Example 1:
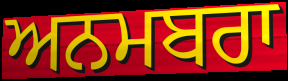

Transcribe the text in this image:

ਅਨਮਬਰਾ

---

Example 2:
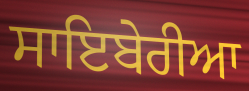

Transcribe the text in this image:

ਸਾਇਬੇਰੀਆ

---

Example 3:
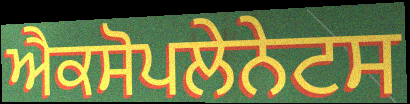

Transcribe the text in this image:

ਐਕਸੋਪਲੇਨੇਟਸ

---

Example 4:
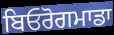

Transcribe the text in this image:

ਬਿਓਰੋਗਮਾਡਾ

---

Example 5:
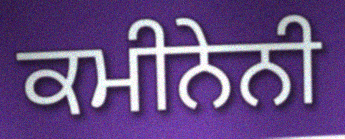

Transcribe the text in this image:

ਕਮੀਨੇਨੀ